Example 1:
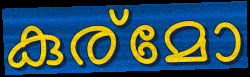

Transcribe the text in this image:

കുര്മോ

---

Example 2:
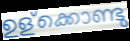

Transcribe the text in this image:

ഉള്ക്കൊണ്ടു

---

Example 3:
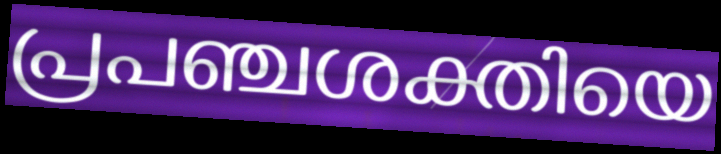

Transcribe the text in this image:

പ്രപഞ്ചശക്തിയെ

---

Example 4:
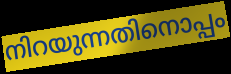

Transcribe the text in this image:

നിറയുന്നതിനൊപ്പം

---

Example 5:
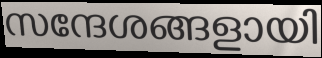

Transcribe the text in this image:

സന്ദേശങ്ങളായി